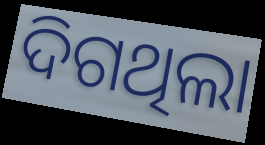
ଦିଗଥିଲା